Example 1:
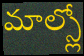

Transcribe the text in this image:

మాల్స్లో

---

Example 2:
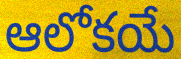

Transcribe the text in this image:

ఆలోకయే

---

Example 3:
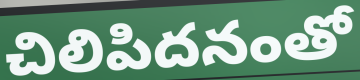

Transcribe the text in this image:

చిలిపిదనంతో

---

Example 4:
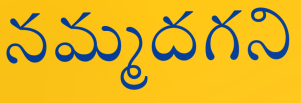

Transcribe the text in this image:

నమ్మదగని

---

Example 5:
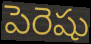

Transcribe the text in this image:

పెరెషు